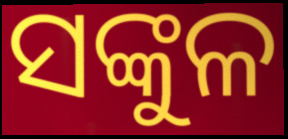
ସଙ୍କୁଳ